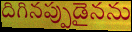
దిగినప్పుడైనను